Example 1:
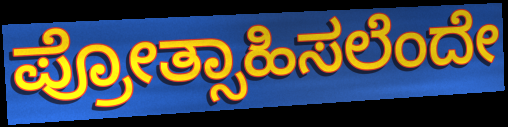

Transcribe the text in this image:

ಪ್ರೋತ್ಸಾಹಿಸಲೆಂದೇ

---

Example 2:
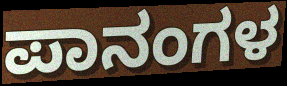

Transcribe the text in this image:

ಪಾನಂಗಳ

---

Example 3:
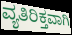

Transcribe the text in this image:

ವ್ಯತಿರಿಕ್ತವಾಗಿ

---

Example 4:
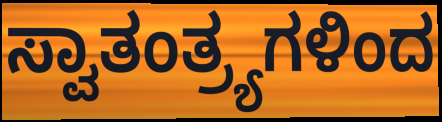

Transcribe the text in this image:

ಸ್ವಾತಂತ್ರ್ಯಗಳಿಂದ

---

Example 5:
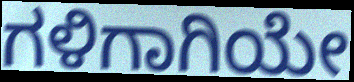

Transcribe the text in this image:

ಗಳಿಗಾಗಿಯೇ